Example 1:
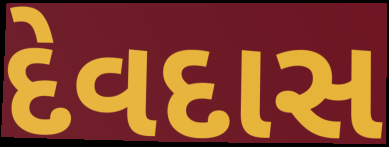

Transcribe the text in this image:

દેવદાસ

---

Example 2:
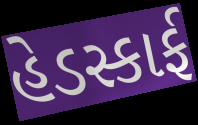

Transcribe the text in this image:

હેડસ્કાર્ફ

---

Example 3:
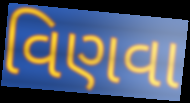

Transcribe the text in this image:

વિણવા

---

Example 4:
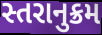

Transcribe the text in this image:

સ્તરાનુક્રમ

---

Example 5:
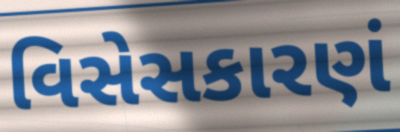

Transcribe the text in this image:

વિસેસકારણં